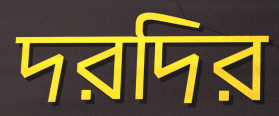
দরদির